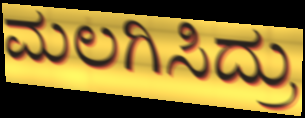
ಮಲಗಿಸಿದ್ರು